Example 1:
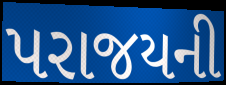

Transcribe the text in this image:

પરાજયની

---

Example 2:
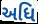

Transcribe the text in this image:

અધિ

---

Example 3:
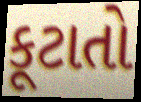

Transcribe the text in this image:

કૂટાતો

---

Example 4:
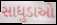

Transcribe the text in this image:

સાધુડાઓ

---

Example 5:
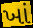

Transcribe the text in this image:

ખાં